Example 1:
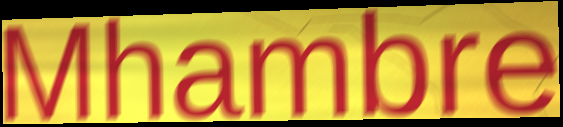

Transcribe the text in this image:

Mhambre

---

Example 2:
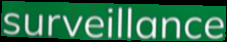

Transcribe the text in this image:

surveillance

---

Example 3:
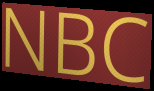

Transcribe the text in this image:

NBC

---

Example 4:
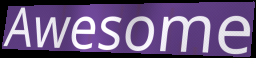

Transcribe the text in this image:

Awesome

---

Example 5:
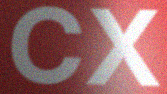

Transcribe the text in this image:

CX